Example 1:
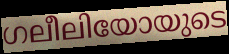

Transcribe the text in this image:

ഗലീലിയോയുടെ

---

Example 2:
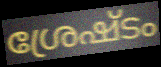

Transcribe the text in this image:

ശ്രേഷ്ടം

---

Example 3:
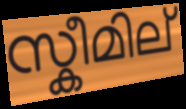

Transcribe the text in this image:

സ്കീമില്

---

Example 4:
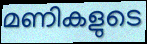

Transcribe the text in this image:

മണികളുടെ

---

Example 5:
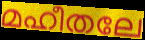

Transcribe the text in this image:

മഹീതലേ